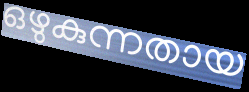
ഒഴുകുന്നതായ